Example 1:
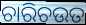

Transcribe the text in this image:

ଚାରିଚଉତ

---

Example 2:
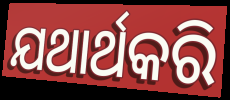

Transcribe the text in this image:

ଯଥାର୍ଥକରି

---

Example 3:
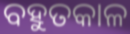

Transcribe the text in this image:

ବହୁତକାଳ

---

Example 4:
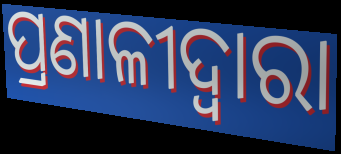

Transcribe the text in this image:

ପ୍ରଣାଳୀଦ୍ୱାରା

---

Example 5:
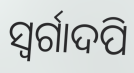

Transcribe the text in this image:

ସ୍ୱର୍ଗାଦପି